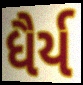
ધૈર્ય